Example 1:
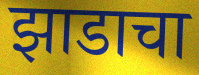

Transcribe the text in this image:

झाडाचा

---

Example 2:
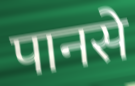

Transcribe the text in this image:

पानसे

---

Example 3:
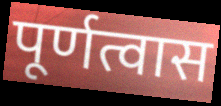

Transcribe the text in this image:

पूर्णत्वास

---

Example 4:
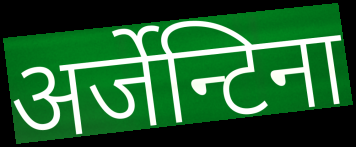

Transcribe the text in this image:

अर्जेन्टिना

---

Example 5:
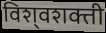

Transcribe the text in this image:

विश्वशक्ती